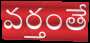
వర్తంతే